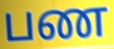
பண